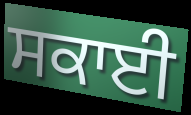
ਸਕਾਈ